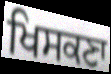
ਖਿਸਕਣਾ